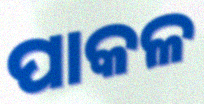
ପାକଳ